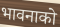
भावनाको